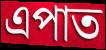
এপাত